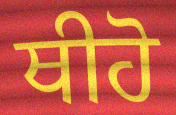
ਥੀਹੋ